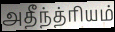
அதீந்த்ரியம்